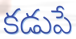
కడుపే